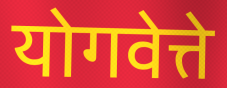
योगवेत्ते